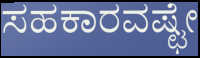
ಸಹಕಾರವಷ್ಟೇ